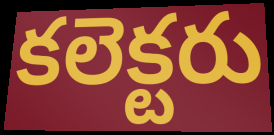
కలెక్టరు